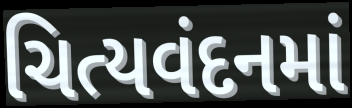
ચિત્યવંદનમાં